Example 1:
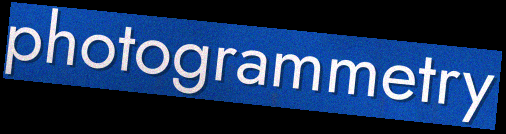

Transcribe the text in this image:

photogrammetry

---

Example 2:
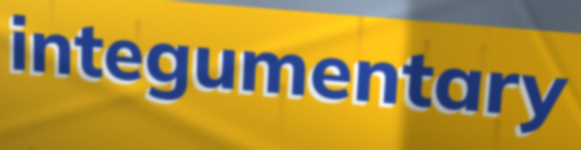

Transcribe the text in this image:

integumentary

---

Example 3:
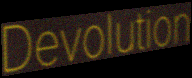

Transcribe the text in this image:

Devolution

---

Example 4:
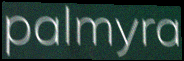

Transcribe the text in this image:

palmyra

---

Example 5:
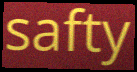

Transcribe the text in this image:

safty